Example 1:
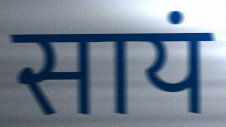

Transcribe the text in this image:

सायं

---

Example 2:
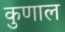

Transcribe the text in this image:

कुणाल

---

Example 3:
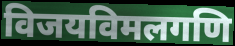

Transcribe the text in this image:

विजयविमलगणि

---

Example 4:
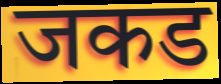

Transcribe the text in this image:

जकड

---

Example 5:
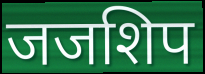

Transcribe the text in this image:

जजशिप